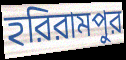
হরিরামপুর